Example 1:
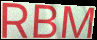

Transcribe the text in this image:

RBM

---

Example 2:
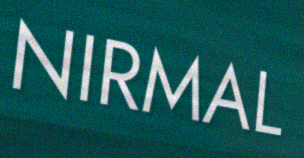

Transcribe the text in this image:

NIRMAL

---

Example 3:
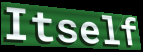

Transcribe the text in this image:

Itself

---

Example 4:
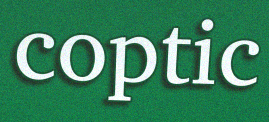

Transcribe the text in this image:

coptic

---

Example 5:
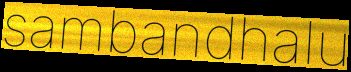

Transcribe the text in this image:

sambandhalu